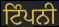
ਟਿੰਪਨੀ